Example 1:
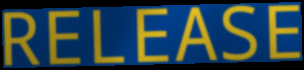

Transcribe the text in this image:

RELEASE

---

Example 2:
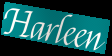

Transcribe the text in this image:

Harleen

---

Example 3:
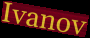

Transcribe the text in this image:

Ivanov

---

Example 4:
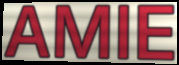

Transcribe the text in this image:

AMIE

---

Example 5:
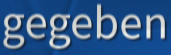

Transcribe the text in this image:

gegeben